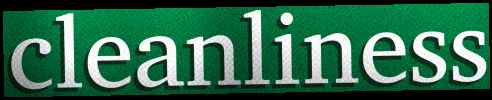
cleanliness